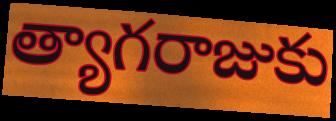
త్యాగరాజుకు